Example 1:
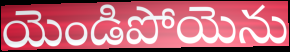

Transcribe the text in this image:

యెండిపోయెను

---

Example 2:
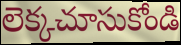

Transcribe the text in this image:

లెక్కచూసుకోండి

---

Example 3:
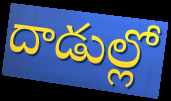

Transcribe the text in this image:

దాడుల్లో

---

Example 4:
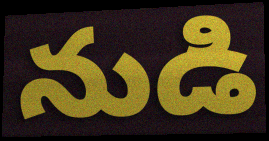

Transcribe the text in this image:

నుడి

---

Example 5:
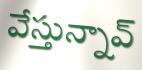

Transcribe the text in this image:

వేస్తున్నావ్